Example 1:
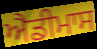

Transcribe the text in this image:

ਐਡੀਮਾਸ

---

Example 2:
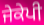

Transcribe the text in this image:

ਜੇਕੇਪੀ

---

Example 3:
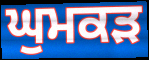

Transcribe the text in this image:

ਘੁਮਕੜ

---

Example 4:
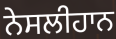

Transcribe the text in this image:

ਨੇਸਲੀਹਾਨ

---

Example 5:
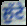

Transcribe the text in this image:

ਲੁੱਟੇ